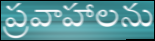
ప్రవాహాలను